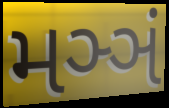
મઞ્ઞં